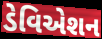
ડેવિએશન